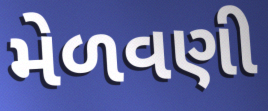
મેળવણી